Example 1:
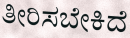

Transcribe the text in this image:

ತೀರಿಸಬೇಕಿದೆ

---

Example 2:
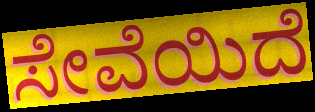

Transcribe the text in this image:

ಸೇವೆಯಿದೆ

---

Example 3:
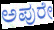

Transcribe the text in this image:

ಅಪುರೇ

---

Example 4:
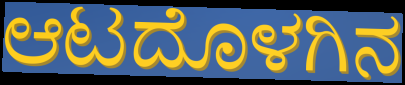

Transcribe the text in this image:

ಆಟದೊಳಗಿನ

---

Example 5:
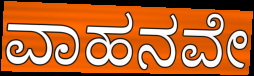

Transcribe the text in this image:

ವಾಹನವೇ